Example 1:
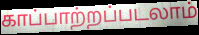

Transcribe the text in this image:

காப்பாற்றப்படலாம்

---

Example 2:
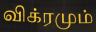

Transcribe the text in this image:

விக்ரமும்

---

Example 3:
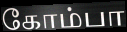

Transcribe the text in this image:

கோம்பா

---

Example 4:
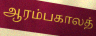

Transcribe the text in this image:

ஆரம்பகாலத்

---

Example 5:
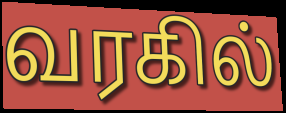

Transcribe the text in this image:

வரகில்